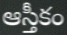
ఆస్తీకం